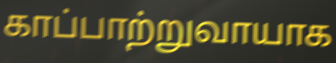
காப்பாற்றுவாயாக